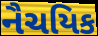
નૈચયિક